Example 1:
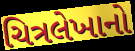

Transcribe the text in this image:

ચિત્રલેખાનો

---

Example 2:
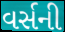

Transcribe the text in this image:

વર્સની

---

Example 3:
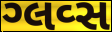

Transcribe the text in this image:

ગ્લવ્સ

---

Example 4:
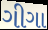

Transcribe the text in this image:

ગીગા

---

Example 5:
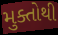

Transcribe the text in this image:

મુક્તોથી